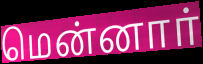
மென்னார்